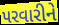
પરવારીને